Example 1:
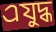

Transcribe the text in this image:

এযুদ্ধ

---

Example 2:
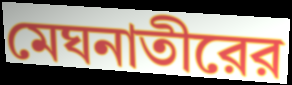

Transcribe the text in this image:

মেঘনাতীরের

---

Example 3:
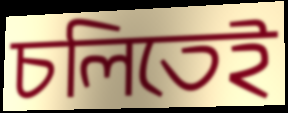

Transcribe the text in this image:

চলিতেই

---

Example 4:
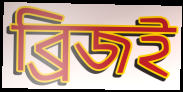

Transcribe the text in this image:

ব্রিজই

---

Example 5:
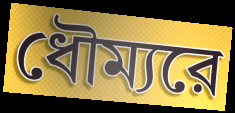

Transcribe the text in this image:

ধৌম্যরে